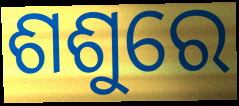
ଶଶୁରେ